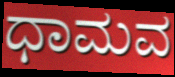
ಧಾಮವ